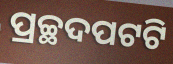
ପ୍ରଚ୍ଛଦପଟଟି